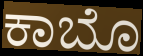
ಕಾಬೊ